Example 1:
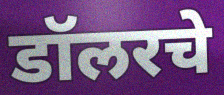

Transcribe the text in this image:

डॉलरचे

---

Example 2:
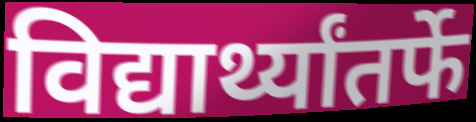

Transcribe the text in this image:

विद्यार्थ्यांतर्फे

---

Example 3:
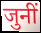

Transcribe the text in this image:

जुनीं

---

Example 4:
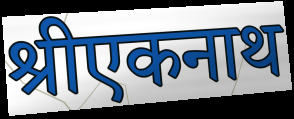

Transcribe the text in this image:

श्रीएकनाथ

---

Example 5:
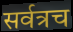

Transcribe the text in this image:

सर्वत्रच